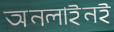
অনলাইনই